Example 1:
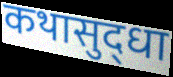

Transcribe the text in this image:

कथासुद्धा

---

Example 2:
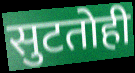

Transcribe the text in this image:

सुटतोही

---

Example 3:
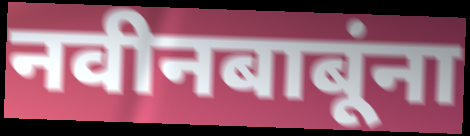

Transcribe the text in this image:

नवीनबाबूंना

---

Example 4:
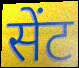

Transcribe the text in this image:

सेंट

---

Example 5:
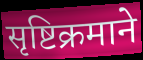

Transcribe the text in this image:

सृष्टिक्रमाने